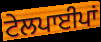
ਟੇਲਪਾਈਪਾਂ